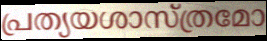
പ്രത്യയശാസ്ത്രമോ